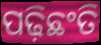
ପଢ଼ିଛଂତି